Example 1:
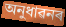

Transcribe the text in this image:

অনুধাৱনৰ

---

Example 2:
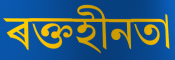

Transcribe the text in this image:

ৰক্তহীনতা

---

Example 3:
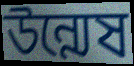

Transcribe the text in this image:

উন্মেষ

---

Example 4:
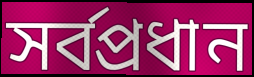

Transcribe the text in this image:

সৰ্বপ্ৰধান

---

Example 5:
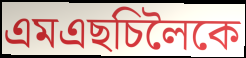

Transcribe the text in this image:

এমএছচিলৈকে